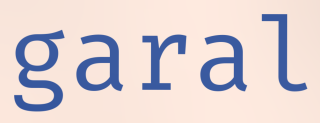
garal